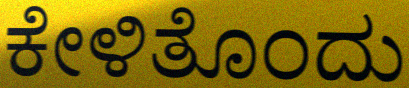
ಕೇಳಿತೊಂದು